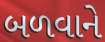
બળવાને